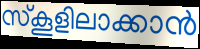
സ്കൂളിലാക്കാൻ